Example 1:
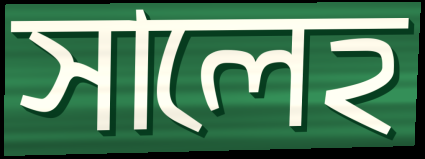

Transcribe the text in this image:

সালেহ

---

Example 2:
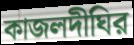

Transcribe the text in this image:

কাজলদীঘির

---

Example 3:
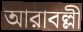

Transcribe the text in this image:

আরাবল্লী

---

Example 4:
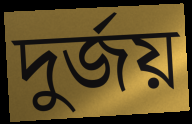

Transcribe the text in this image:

দুর্জয়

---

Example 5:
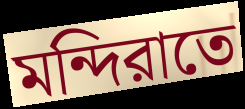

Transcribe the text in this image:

মন্দিরাতে